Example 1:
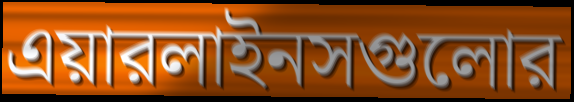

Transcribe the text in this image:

এয়ারলাইনসগুলোর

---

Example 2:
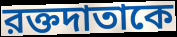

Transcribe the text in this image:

রক্তদাতাকে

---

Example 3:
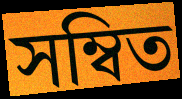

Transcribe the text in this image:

সম্বিত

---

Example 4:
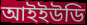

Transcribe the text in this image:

আইইউডি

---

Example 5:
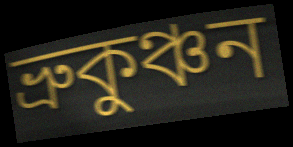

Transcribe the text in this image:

ভ্রুকুঞ্চন